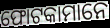
ଫୋଟକାମାନେ